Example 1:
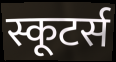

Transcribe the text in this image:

स्कूटर्स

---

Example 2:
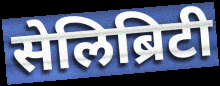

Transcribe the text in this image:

सेलिब्रिटी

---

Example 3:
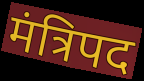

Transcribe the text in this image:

मंत्रिपद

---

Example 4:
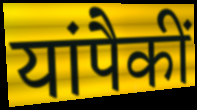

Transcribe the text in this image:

यांपैकीं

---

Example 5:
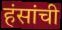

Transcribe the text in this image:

हंसांची